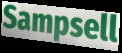
Sampsell